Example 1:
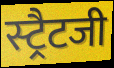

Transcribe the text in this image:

स्‍ट्रैटजी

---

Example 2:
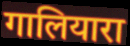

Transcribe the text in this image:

गालियारा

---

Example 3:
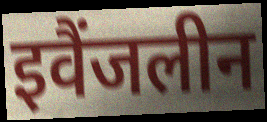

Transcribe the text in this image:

इवैंजलीन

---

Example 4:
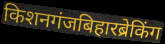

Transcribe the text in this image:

किशनगंजबिहारब्रेकिंग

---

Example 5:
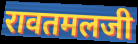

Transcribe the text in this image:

रावतमलजी